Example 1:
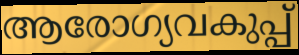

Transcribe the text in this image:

ആരോഗ്യവകുപ്പ്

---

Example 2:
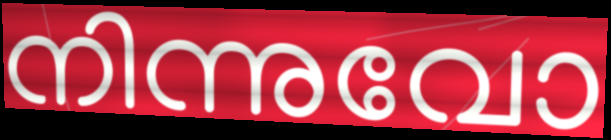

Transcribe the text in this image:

നിന്നുവോ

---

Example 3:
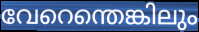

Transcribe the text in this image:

വേറെന്തെങ്കിലും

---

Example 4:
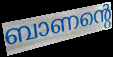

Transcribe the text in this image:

ബാണന്റെ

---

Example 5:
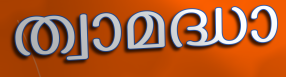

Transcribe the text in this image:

ത്വാമദ്ധാ